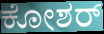
ಕೋಶರ್